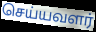
செய்யவளர்